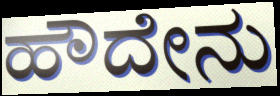
ಹೌದೇನು